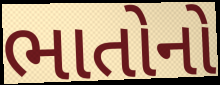
ભાતોનો